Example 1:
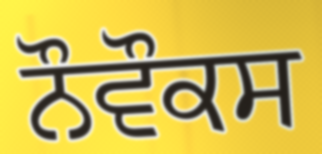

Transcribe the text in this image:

ਨੌਵੌਕਸ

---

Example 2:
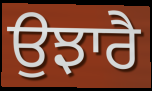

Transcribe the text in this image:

ਉਝਾਰੈ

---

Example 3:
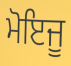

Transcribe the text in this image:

ਮੋਇਜੂ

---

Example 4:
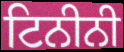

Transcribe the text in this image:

ਟਿਨੀਨੀ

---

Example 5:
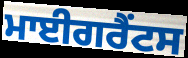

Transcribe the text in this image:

ਮਾਈਗਰੈਂਟਸ